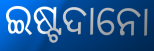
ଇଷ୍ଟଦାନୋ